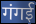
गंगई